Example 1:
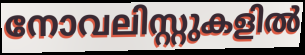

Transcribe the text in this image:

നോവലിസ്റ്റുകളിൽ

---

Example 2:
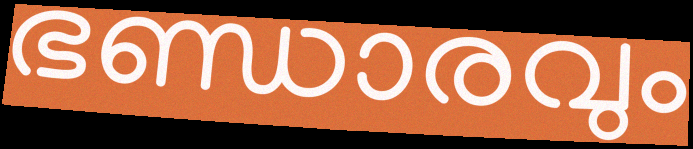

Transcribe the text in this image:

ഭണ്ഡാരവും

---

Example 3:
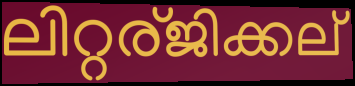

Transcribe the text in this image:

ലിറ്റര്ജിക്കല്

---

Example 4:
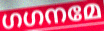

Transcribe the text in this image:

ഗഗനമേ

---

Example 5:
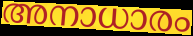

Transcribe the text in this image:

അനാധാരം